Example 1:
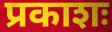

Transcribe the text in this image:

प्रकाशः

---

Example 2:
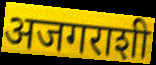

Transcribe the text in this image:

अजगराशी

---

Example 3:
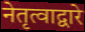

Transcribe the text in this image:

नेतृत्वाद्वारे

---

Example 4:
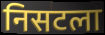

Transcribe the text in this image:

निसटला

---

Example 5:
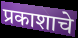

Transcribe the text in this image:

प्रकाशाचे